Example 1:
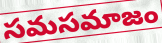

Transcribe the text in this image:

సమసమాజం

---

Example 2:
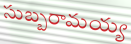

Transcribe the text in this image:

సుబ్బరామయ్య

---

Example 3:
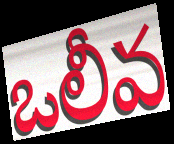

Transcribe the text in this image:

ఒలీవ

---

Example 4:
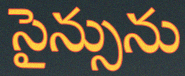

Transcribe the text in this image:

సైన్సును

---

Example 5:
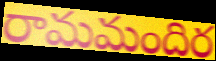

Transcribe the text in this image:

రామమందిర